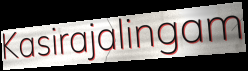
Kasirajalingam